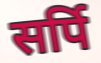
सर्पि